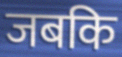
जबकि